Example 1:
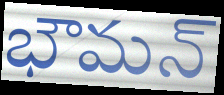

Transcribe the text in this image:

భౌమన్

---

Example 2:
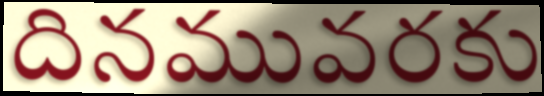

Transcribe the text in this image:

దినమువరకు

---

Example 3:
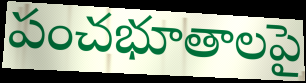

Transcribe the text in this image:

పంచభూతాలపై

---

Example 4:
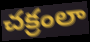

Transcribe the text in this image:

చక్రంలా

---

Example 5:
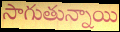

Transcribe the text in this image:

సాగుతున్నాయి